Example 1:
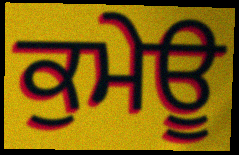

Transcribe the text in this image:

ਕੁਮੇਊ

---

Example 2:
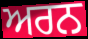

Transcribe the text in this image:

ਅਰਨ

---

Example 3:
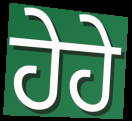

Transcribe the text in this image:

ਹੇਹੇ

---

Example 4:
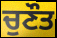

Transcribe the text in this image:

ਚੁਣੌਤ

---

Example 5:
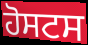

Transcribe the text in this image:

ਹੋਸਟਸ